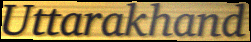
Uttarakhand